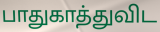
பாதுகாத்துவிட